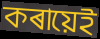
কৰায়েই